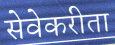
सेवेकरीता